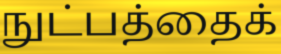
நுட்பத்தைக்